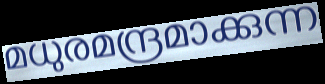
മധുരമന്ദ്രമാക്കുന്ന